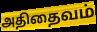
அதிதைவம்